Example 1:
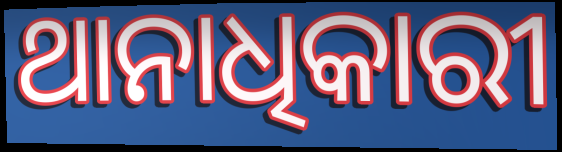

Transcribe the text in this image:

ଥାନାଧିକାରୀ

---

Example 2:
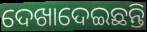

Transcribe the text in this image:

ଦେଖାଦେଇଛନ୍ତି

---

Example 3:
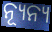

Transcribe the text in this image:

ନ୍ୟୂନ୍ୟ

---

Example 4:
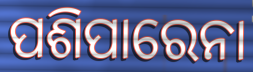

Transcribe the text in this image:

ପଶିପାରେନା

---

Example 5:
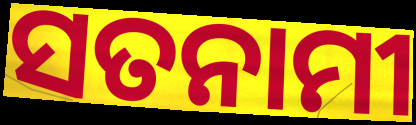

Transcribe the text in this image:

ସତନାମୀ